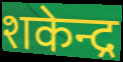
शकेन्द्र